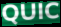
QUIC